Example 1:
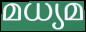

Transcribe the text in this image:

മധ്യമ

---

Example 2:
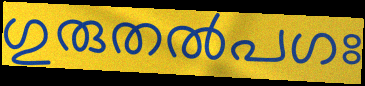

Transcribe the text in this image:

ഗുരുതൽപഗഃ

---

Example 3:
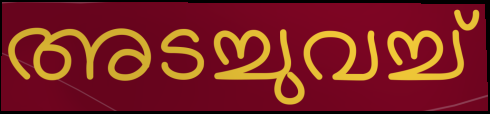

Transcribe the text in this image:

അടച്ചുവച്ച്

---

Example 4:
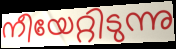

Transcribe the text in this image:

നീയേറ്റിടുന്നു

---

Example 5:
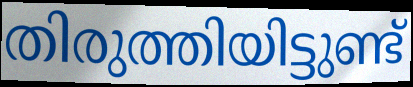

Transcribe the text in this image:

തിരുത്തിയിട്ടുണ്ട്